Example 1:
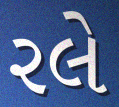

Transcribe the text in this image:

રલે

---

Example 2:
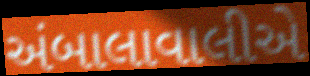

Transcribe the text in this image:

અંબાલાવાલીએ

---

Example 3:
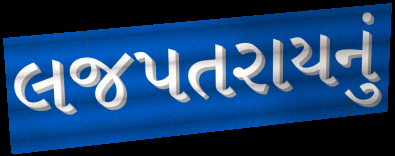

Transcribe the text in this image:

લજપતરાયનું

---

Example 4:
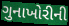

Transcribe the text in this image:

ગુનાખોરીની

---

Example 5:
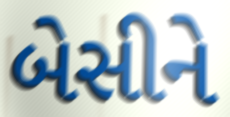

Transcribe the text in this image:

બેસીને